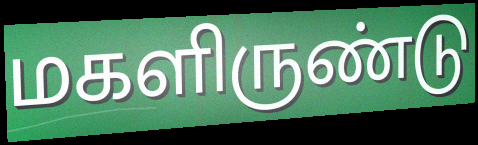
மகளிருண்டு